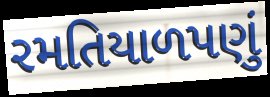
રમતિયાળપણું